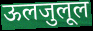
ऊलजुलूल